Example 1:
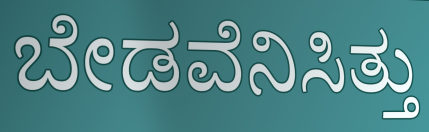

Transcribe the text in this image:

ಬೇಡವೆನಿಸಿತ್ತು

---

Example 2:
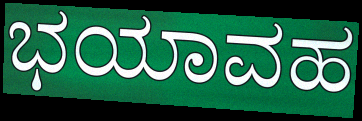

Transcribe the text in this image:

ಭಯಾವಹ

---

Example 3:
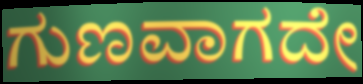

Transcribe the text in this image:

ಗುಣವಾಗದೇ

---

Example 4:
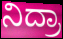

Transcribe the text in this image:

ನಿದ್ರಾ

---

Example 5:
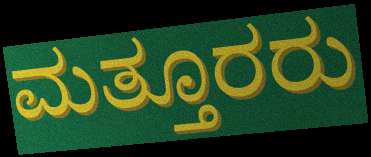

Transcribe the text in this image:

ಮತ್ತೂರರು